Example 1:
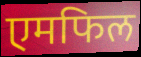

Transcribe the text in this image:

एमफिल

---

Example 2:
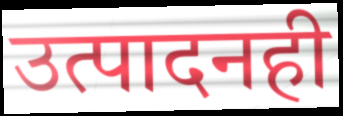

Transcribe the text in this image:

उत्पादनही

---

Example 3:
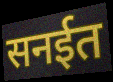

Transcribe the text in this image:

सनईत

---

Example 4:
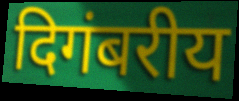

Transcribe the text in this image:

दिगंबरीय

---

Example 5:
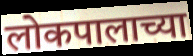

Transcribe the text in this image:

लोकपालाच्या